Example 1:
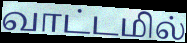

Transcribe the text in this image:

வாட்டமில்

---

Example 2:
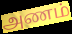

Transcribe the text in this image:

அணம்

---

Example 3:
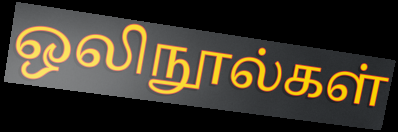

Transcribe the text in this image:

ஒலிநூல்கள்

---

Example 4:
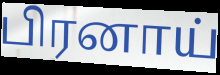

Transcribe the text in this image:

பிரனாய்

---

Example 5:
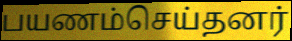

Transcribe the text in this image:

பயணம்செய்தனர்